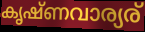
കൃഷ്ണവാര്യര്